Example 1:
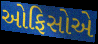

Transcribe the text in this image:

ઓફિસોએ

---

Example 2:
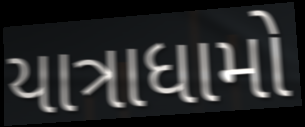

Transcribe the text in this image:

યાત્રાધામો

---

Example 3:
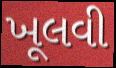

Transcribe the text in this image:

ખૂલવી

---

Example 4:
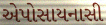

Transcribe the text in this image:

એપોસાયનાસી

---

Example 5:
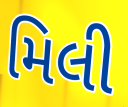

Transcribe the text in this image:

મિલી